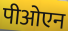
पीओएन